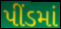
પીંડમાં